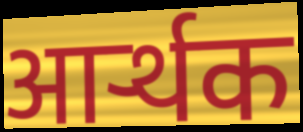
आर्र्थक